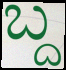
ಬ್ದ